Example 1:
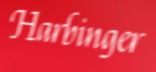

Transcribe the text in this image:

Harbinger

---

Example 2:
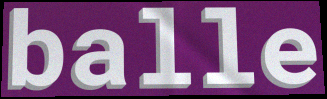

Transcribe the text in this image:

balle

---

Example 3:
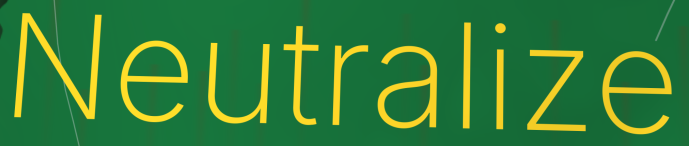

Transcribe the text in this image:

Neutralize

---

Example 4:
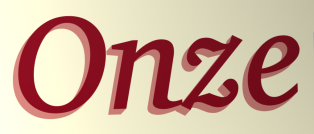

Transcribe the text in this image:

Onze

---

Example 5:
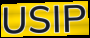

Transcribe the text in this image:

USIP